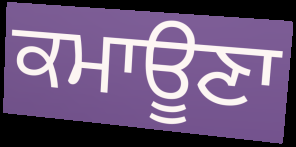
ਕਮਾਊਣਾ